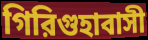
গিরিগুহাবাসী